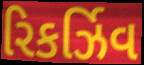
રિકર્ઝિવ